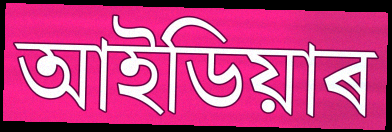
আইডিয়াৰ